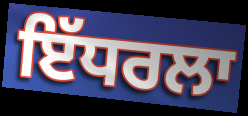
ਇੱਧਰਲਾ